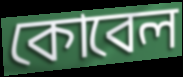
কোবেল